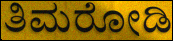
ತಿಮರೋಡಿ